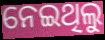
ନେଇଥିଲୁ